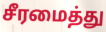
சீரமைத்து